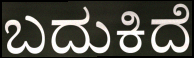
ಬದುಕಿದೆ